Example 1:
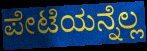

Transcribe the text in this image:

ಪೇಟೆಯನ್ನೆಲ್ಲ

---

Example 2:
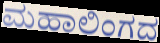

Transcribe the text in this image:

ಮಹಾಲಿಂಗದ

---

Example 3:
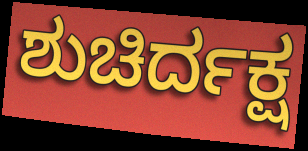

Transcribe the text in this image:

ಶುಚಿರ್ದಕ್ಷ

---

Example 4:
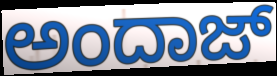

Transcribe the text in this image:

ಅಂದಾಜ್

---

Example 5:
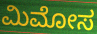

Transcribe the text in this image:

ಮಿಮೋಸ